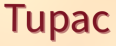
Tupac